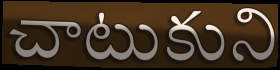
చాటుకుని